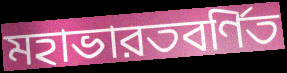
মহাভারতবর্ণিত